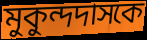
মুকুন্দদাসকে